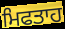
ਮਿਫਤਾਹ